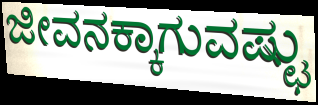
ಜೀವನಕ್ಕಾಗುವಷ್ಟು